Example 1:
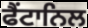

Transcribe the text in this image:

ਫੈਂਟਾਨਿਲ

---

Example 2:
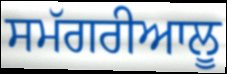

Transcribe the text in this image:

ਸਮੱਗਰੀਆਲੂ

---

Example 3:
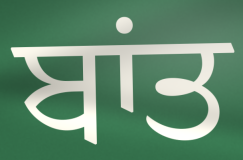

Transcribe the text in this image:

ਬਾਂਤ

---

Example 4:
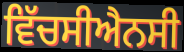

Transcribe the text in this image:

ਵਿੱਚਸੀਐਨਸੀ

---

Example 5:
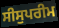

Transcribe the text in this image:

ਸੀਸੁਪਰੀਮ